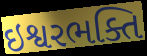
ઇશ્વરભક્તિ